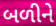
બળીને